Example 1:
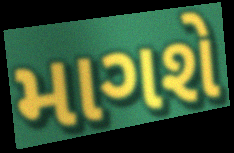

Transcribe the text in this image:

માગશે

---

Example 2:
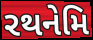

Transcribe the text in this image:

રથનેમિ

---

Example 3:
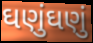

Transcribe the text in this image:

ઘણુંઘણું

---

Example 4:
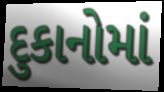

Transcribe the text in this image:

દુકાનોમાં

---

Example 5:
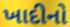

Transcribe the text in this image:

ખાદીનો